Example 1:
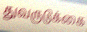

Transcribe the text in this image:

துவருடுக்கை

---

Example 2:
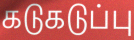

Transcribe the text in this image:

கடுகடுப்பு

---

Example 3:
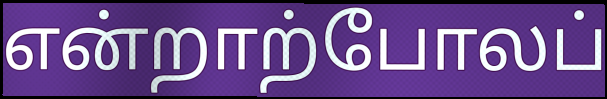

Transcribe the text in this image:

என்றாற்போலப்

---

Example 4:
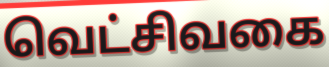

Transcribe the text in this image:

வெட்சிவகை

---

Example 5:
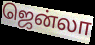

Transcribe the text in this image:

ஜென்லா